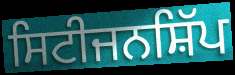
ਸਿਟੀਜਨਸ਼ਿੱਪ